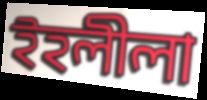
ইহলীলা